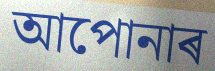
আপোনাৰ